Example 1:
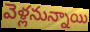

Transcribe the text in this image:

వెళ్లనున్నాయి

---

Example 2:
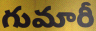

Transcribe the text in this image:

గుమారీ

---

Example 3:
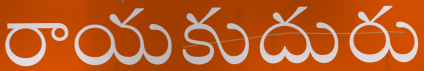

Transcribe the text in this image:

రాయకుదురు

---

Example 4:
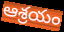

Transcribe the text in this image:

ఆశ్రయం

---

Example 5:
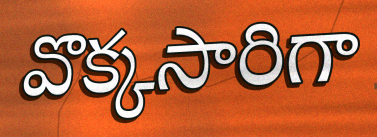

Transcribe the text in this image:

వొక్కసారిగా